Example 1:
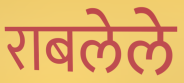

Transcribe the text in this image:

राबलेले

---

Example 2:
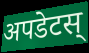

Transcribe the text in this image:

अपडेटस्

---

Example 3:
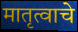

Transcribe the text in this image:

मातृत्वाचे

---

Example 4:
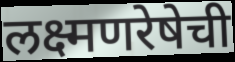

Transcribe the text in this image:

लक्ष्मणरेषेची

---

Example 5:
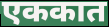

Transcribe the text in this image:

एककात